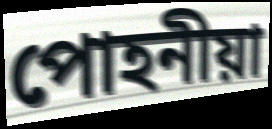
পোহনীয়া